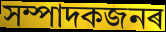
সম্পাদকজনৰ